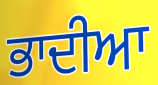
ਭਾਦੀਆ